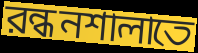
রন্ধনশালাতে